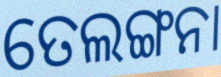
ତେଲଙ୍ଗନା